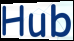
Hub